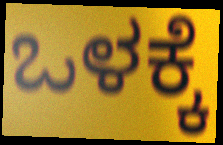
ಒಳಕ್ಕೆ